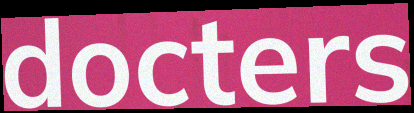
docters